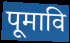
पूमावि